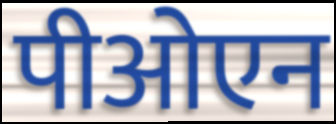
पीओएन